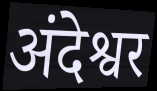
अंदेश्वर